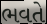
ભવતે